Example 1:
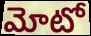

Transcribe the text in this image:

మోటో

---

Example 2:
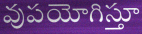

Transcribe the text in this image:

వుపయోగిస్తూ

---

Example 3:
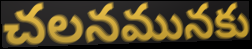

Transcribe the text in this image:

చలనమునకు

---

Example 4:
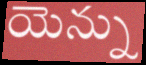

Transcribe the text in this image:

యెన్ను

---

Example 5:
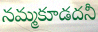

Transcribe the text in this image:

నమ్మకూడదనీ